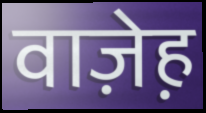
वाज़ेह़